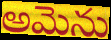
అమెను